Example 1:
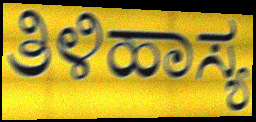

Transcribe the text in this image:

ತಿಳಿಹಾಸ್ಯ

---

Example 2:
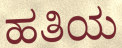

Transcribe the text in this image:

ಹತಿಯ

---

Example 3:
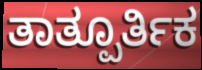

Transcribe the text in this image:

ತಾತ್ಪೂರ್ತಿಕ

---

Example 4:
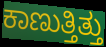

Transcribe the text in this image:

ಕಾಣುತ್ತಿತ್ತು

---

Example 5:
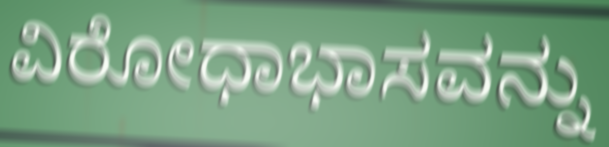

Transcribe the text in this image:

ವಿರೋಧಾಭಾಸವನ್ನು